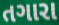
તગારા